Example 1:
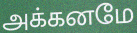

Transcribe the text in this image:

அக்கனமே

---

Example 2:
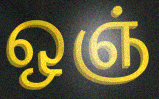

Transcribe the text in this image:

ஒஞ்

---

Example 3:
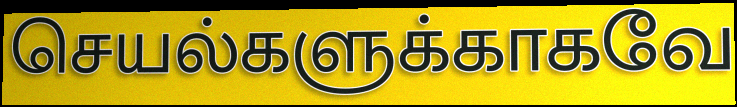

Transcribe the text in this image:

செயல்களுக்காகவே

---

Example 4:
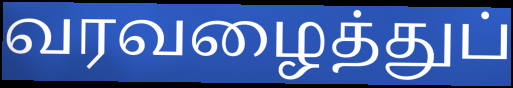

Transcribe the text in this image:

வரவழைத்துப்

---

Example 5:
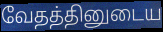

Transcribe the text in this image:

வேதத்தினுடைய